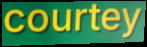
courtey